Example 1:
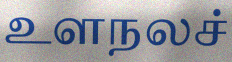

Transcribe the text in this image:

உளநலச்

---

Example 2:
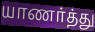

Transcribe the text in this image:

யாணர்த்து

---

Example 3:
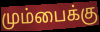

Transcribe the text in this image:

மும்பைக்கு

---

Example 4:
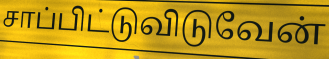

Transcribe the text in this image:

சாப்பிட்டுவிடுவேன்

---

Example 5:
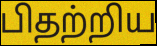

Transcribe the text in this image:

பிதற்றிய